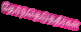
தேர்ந்தெடுத்தீர்கள்